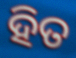
ହିତ